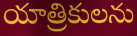
యాత్రికులను